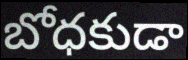
బోధకుడా